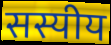
सस्यीय